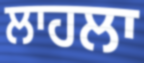
ਲਾਹਲਾ